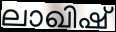
ലാഖിഷ്